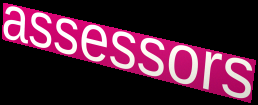
assessors